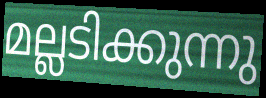
മല്ലടിക്കുന്നു